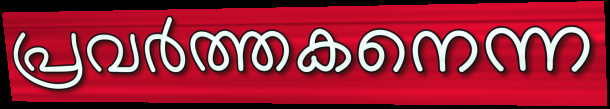
പ്രവർത്തകനെന്ന